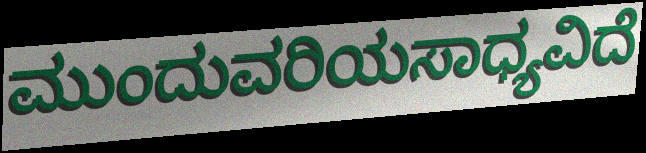
ಮುಂದುವರಿಯಸಾಧ್ಯವಿದೆ